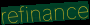
refinance